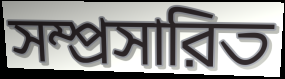
সম্প্রসারিত